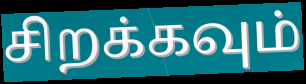
சிறக்கவும்